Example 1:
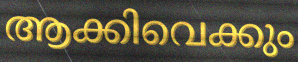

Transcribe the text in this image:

ആക്കിവെക്കും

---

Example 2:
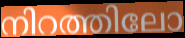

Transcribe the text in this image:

നിറത്തിലോ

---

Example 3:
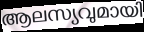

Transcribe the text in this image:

ആലസ്യവുമായി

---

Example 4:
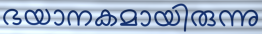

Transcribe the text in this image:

ഭയാനകമായിരുന്നു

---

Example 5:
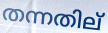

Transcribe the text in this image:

തന്നതില്